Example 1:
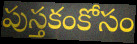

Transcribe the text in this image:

పుస్తకంకోసం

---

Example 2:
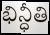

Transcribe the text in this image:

భిన్ధీతి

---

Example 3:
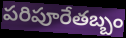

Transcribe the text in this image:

పరిపూరేతబ్బం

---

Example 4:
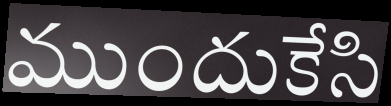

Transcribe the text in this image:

ముందుకేసి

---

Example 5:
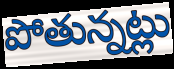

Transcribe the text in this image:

పోతున్నట్లు